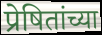
प्रेषितांच्या